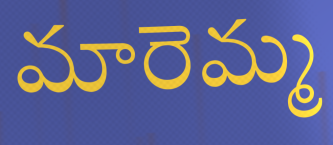
మారెమ్మ